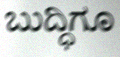
ಬುದ್ಧಿಗೂ